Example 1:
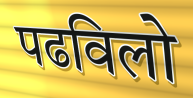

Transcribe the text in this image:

पढविलो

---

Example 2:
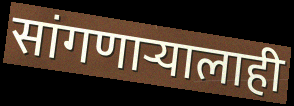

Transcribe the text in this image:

सांगणाऱ्यालाही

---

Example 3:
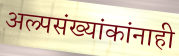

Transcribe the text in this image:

अल्पसंख्यांकांनाही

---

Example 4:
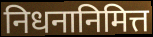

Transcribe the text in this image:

निधनानिमित्त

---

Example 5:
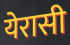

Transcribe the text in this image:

येरासी